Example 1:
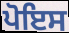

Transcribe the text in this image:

ਪੋਇਸ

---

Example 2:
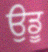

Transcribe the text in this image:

ਉਡੂ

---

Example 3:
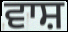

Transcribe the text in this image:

ਵਾਸ਼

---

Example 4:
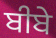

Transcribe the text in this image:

ਬੀਬੇ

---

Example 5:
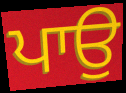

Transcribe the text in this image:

ਪਾਉ